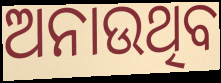
ଅନାଉଥିବ